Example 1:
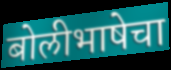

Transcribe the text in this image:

बोलीभाषेचा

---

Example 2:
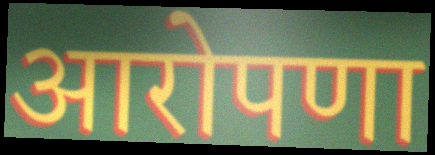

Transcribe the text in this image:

आरोपणा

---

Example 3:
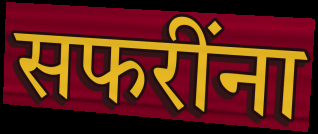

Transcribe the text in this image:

सफरींना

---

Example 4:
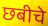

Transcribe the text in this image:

छबीचे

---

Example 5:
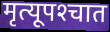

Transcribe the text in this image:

मृत्यूपश्चात